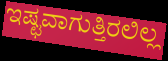
ಇಷ್ಟವಾಗುತ್ತಿರಲಿಲ್ಲ